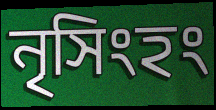
নৃসিংহং